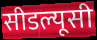
सीडल्यूसी